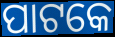
ପାଟକେ